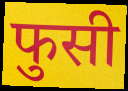
फुसी